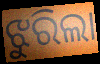
ଝୁରିଲା